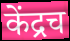
केंद्रच